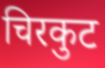
चिरकुट